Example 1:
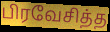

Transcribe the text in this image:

பிரவேசித்த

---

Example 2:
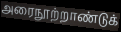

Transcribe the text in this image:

அரைநூற்றாண்டுக்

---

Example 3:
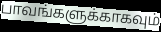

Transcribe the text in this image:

பாவங்களுக்காகவும்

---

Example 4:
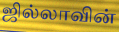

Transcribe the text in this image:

ஜில்லாவின்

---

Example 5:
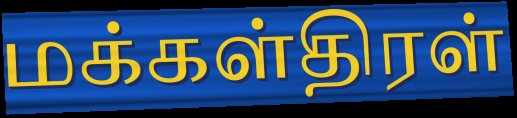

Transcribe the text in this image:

மக்கள்திரள்